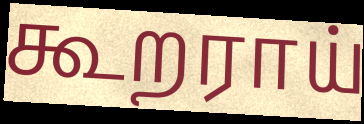
கூறராய்